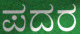
ಪದರ